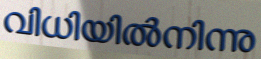
വിധിയിൽനിന്നു